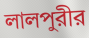
লালপুরীর